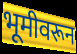
भूमीवरून